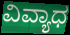
ವಿವ್ಯಾಧ